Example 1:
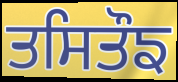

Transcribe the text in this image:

ਤਸਿਤੌਙ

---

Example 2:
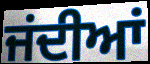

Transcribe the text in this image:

ਜਂਦੀਆਂ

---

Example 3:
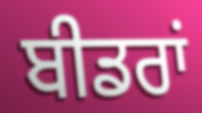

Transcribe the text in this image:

ਬੀਡਰਾਂ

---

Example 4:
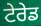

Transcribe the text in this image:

ਟੇਰੇਡ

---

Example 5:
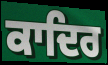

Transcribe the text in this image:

ਕਾਦਿਰ